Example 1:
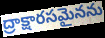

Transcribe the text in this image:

ద్రాక్షారసమైనను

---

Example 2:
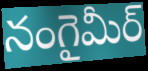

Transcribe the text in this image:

నంగైమీర్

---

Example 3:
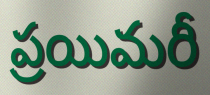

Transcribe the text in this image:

ప్రయిమరీ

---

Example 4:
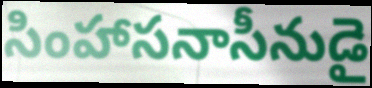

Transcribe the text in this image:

సింహాసనాసీనుడై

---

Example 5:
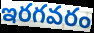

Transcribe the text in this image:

ఇరగవరం